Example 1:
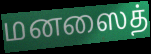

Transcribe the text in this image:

மனஸைத்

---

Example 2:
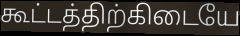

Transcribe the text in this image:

கூட்டத்திற்கிடையே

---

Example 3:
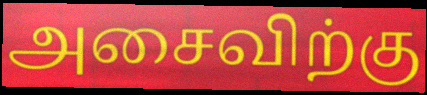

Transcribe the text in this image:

அசைவிற்கு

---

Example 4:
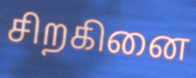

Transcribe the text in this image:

சிறகினை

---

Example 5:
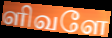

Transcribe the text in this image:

ளிவளே